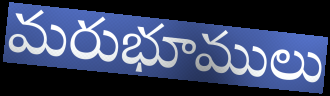
మరుభూములు